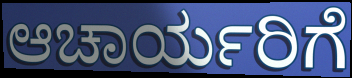
ಆಚಾರ್ಯರಿಗೆ